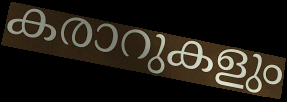
കരാറുകളും